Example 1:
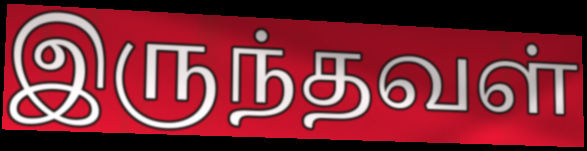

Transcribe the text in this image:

இருந்தவள்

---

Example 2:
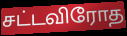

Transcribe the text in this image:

சட்டவிரோத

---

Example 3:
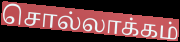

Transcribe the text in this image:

சொல்லாக்கம்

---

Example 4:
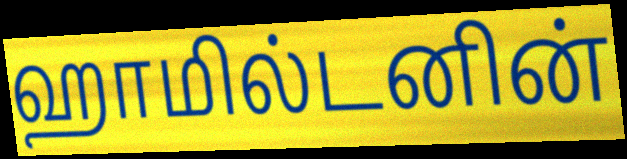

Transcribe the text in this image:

ஹாமில்டனின்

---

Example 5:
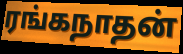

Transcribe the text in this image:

ரங்கநாதன்